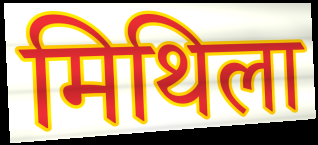
मिथिला